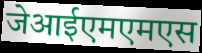
जेआईएमएमएस